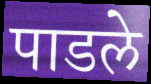
पाडले